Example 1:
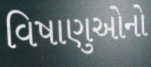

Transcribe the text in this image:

વિષાણુઓનો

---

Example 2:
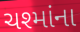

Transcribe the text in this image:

ચશ્માંના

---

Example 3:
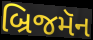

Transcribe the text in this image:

બ્રિજમૅન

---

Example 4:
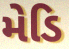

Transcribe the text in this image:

મેડિ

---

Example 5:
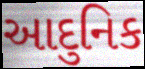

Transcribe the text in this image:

આદુનિક